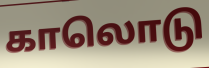
காலொடு